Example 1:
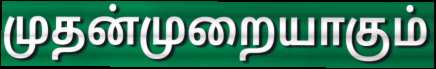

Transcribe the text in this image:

முதன்முறையாகும்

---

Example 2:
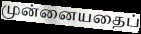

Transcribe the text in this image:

முன்னையதைப்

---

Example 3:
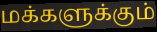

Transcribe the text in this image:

மக்களுக்கும்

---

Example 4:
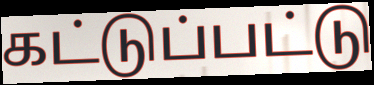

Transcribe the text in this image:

கட்டுப்பட்டு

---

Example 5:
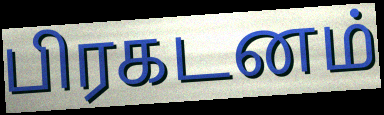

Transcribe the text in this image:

பிரகடனம்